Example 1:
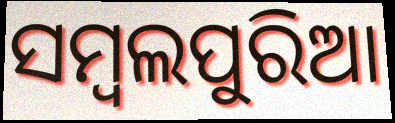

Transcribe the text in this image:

ସମ୍ବଲପୁରିଆ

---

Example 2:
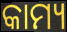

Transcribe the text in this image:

କାମ୍ୟ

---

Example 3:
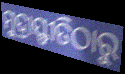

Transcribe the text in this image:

ମୁଦ୍ରାସ୍ଫୀତିଠାରୁ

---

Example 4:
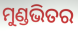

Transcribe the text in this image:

ମୁଣ୍ଡଭିତର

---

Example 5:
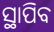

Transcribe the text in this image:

ସ୍ଥାପିବ